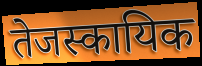
तेजस्कायिक